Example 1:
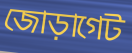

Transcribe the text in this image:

জোড়াগেট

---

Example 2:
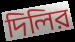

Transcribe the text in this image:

দিলির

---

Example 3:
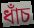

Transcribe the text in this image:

ধাঁচ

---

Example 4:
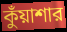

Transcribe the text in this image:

কুঁয়াশার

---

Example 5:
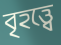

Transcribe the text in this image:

বৃহত্ত্বে